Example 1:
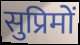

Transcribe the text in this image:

सुप्रिमों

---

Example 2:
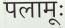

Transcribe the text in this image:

पलामूः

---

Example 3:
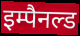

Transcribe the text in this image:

इम्पैनल्ड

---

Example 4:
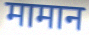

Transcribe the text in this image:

मामान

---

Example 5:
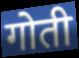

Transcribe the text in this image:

गोती